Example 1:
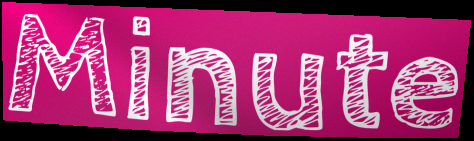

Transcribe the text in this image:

Minute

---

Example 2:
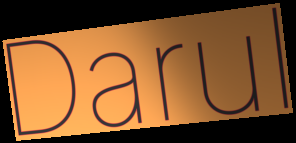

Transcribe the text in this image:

Darul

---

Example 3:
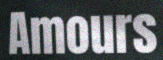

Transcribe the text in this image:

Amours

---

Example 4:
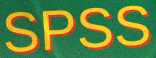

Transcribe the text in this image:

SPSS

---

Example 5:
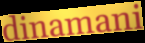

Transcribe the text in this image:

dinamani